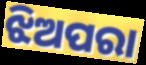
ଝିଅପରା